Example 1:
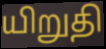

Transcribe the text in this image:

யிறுதி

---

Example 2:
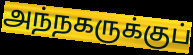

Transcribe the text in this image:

அந்நகருக்குப்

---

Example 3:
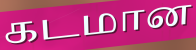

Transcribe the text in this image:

கடமான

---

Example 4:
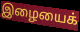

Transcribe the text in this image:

இழையைக்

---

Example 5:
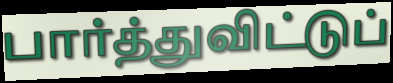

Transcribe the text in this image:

பார்த்துவிட்டுப்